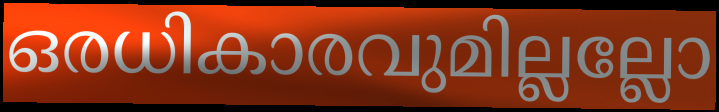
ഒരധികാരവുമില്ലല്ലോ